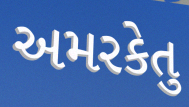
અમરકેતુ